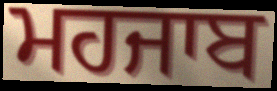
ਮਹਜਾਬ